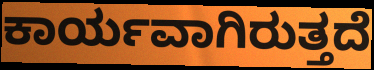
ಕಾರ್ಯವಾಗಿರುತ್ತದೆ